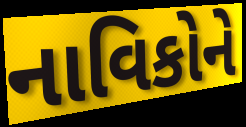
નાવિકોને